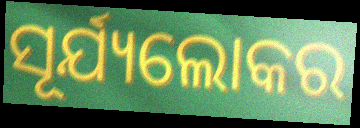
ସୂର୍ଯ୍ୟଲୋକର